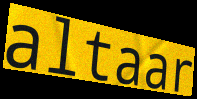
altaar